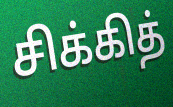
சிக்கித்